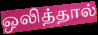
ஒலித்தால்